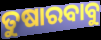
ତୁଷାରବାବୁ